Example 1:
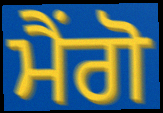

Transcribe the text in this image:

ਮੈਂਗੋ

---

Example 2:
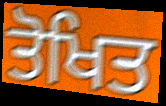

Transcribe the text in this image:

ਤੋਖਿਤ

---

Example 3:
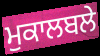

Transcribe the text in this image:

ਮੁਕਾਲਬਲੇ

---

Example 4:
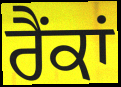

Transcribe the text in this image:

ਰੈਂਕਾਂ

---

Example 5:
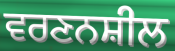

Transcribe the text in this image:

ਵਰਣਨਸ਼ੀਲ